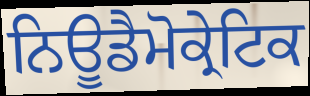
ਨਿਊਡੈਮੋਕ੍ਰੇਟਿਕ